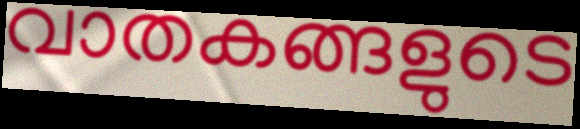
വാതകങ്ങളുടെ